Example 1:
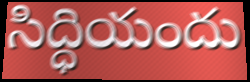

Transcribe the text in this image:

సిద్ధియందు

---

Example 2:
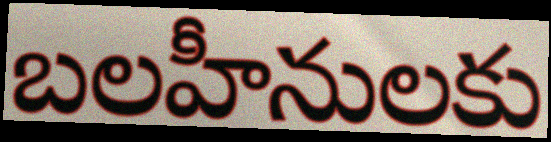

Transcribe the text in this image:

బలహీనులకు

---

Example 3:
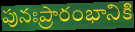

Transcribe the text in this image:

పునఃప్రారంభానికి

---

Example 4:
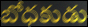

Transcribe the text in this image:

బోధకుడు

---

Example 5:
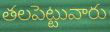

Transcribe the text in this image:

తలపెట్టువారు